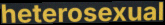
heterosexual